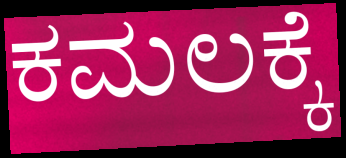
ಕಮಲಕ್ಕೆ